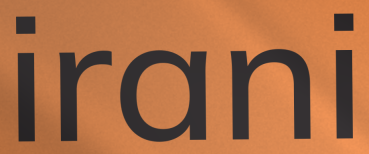
irani